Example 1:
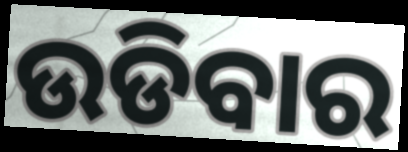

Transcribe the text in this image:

ଉଡିବାର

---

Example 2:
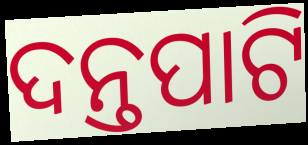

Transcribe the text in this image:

ଦନ୍ତପାଟି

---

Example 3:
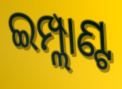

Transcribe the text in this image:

ଇମ୍ପ୍ଲାଣ୍ଟ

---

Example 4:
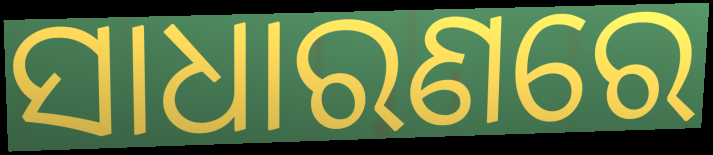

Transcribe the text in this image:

ସାଧାରଣରେ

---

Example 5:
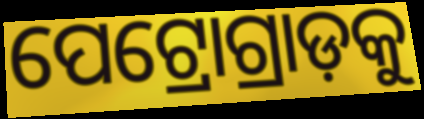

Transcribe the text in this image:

ପେଟ୍ରୋଗ୍ରାଡ଼କୁ